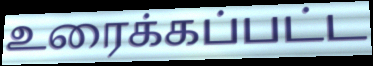
உரைக்கப்பட்ட